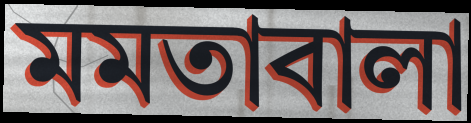
মমতাবালা